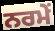
ਨਰਮੇਂ